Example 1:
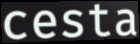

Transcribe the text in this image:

cesta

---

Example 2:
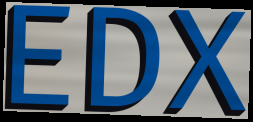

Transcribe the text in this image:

EDX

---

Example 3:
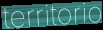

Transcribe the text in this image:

territorio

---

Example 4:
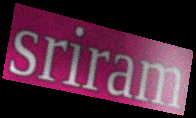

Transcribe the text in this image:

sriram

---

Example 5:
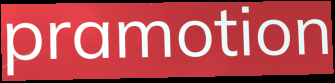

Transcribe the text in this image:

pramotion